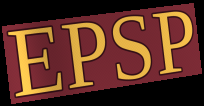
EPSP